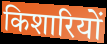
किशारियों